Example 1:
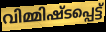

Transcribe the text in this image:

വിമ്മിഷ്ടപ്പെട്ട്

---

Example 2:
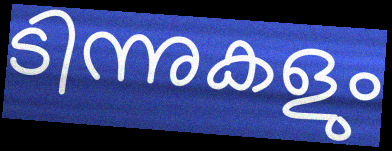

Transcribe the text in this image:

ടിന്നുകളും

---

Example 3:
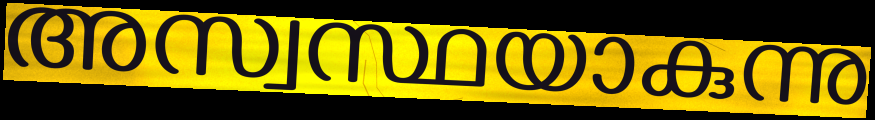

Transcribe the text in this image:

അസ്വസ്ഥയാകുന്നു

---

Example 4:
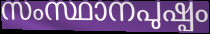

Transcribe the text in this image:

സംസ്ഥാനപുഷ്പം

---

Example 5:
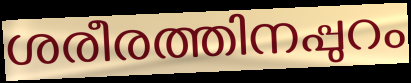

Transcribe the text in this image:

ശരീരത്തിനപ്പുറം